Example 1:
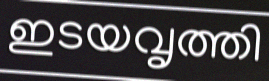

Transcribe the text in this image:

ഇടയവൃത്തി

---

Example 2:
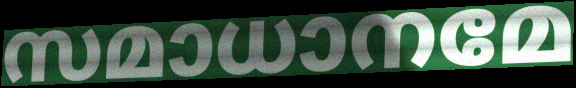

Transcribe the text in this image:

സമാധാനമേ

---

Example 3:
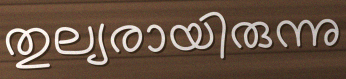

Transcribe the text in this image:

തുല്യരായിരുന്നു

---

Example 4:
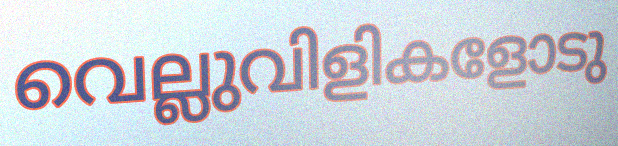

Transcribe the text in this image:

വെല്ലുവിളികളോടു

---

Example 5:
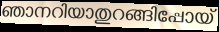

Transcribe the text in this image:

ഞാനറിയാതുറങ്ങിപ്പോയ്